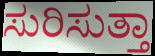
ಸುರಿಸುತ್ತಾ